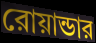
রোয়ান্ডার